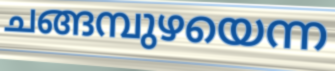
ചങ്ങമ്പുഴയെന്ന